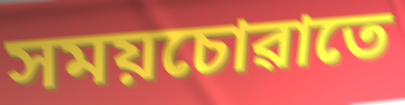
সময়চোৱাতে